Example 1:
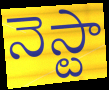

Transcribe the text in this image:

నెస్టా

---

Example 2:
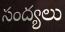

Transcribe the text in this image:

సంద్యలు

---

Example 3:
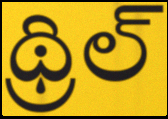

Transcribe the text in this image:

థ్రిల్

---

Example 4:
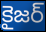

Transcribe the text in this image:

కైజర్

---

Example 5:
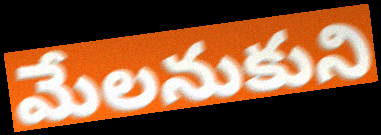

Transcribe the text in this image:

మేలనుకుని